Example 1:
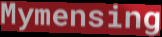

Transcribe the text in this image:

Mymensing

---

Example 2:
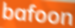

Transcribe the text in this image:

bafoon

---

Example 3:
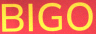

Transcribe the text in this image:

BIGO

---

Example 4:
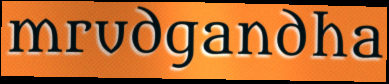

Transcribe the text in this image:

mrudgandha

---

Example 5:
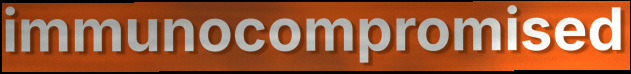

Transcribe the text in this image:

immunocompromised